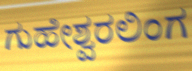
ಗುಹೇಶ್ವರಲಿಂಗ